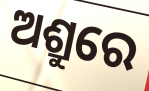
ଅଶ୍ରୁରେ